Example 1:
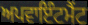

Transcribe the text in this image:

ਅਪਵਾਇੰਟਮੈਂਟ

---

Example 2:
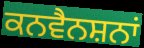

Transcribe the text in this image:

ਕਨਵੈਨਸ਼ਨਾਂ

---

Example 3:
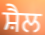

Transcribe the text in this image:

ਸ਼ੈਲ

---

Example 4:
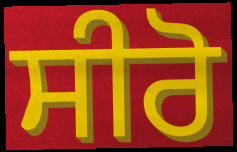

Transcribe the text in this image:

ਸੀਰੋ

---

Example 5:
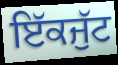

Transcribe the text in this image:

ਇੱਕਜੁੱਟ